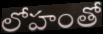
లోహంతో